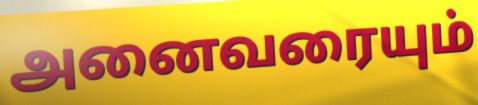
அனைவரையும்